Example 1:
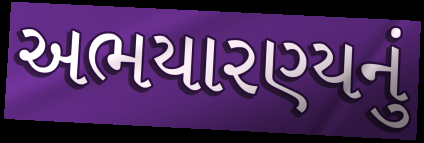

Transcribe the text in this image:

અભયારણ્યનું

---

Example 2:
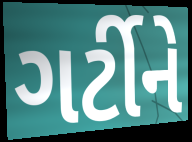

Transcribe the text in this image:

ગર્ટીને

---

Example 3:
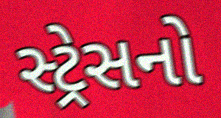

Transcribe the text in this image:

સ્ટ્રેસનો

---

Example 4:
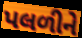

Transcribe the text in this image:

પલળીને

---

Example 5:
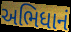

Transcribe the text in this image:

અભિધાનં